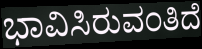
ಭಾವಿಸಿರುವಂತಿದೆ